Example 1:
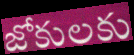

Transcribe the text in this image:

జోకులకు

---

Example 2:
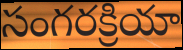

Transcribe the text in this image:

సంగరక్రియా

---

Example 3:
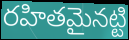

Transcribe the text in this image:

రహితమైనట్టి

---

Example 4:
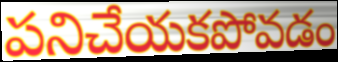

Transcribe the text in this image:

పనిచేయకపోవడం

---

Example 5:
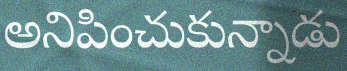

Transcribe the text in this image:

అనిపించుకున్నాడు